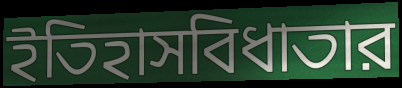
ইতিহাসবিধাতার